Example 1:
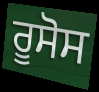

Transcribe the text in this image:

ਰੂਸੋਸ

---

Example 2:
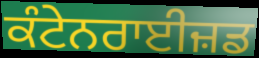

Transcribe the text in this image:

ਕੰਟੇਨਰਾਈਜ਼ਡ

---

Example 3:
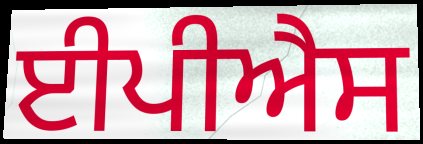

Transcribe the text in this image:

ਈਪੀਐਸ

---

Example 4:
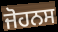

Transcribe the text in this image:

ਜੋਹਨਸ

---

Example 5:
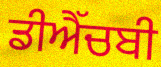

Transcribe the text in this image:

ਡੀਐੱਚਬੀ